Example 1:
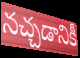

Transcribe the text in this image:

నచ్చడానికీ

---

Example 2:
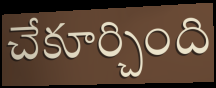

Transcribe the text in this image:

చేకూర్చింది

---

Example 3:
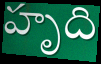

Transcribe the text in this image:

హృది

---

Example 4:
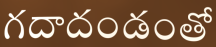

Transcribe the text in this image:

గదాదండంతో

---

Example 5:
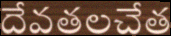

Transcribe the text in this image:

దేవతలచేత